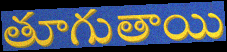
తూగుతాయి